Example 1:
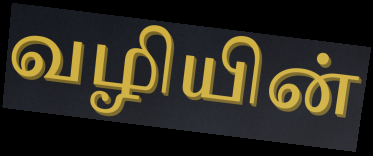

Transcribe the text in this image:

வழியின்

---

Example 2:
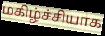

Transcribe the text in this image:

மகிழ்ச்சியாக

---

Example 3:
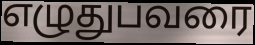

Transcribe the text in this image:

எழுதுபவரை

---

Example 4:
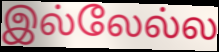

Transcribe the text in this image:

இல்லேல்ல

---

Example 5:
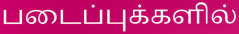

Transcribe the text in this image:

படைப்புக்களில்